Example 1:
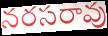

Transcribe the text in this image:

నరసరావు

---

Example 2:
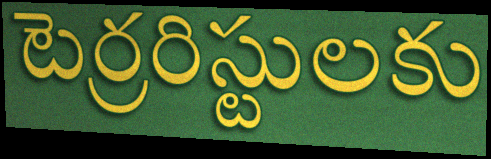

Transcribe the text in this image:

టెర్రరిస్టులకు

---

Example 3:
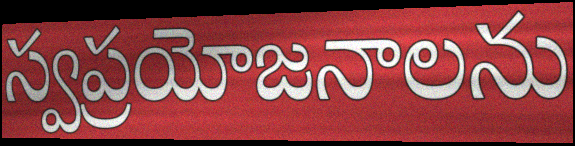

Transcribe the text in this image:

స్వప్రయోజనాలను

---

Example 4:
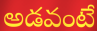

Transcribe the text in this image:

అడవంటే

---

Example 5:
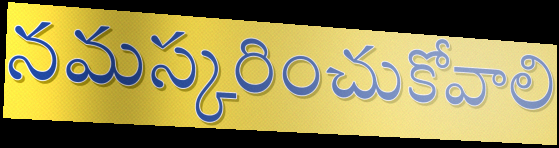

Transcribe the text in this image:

నమస్కరించుకోవాలి